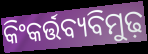
କିଂକର୍ତ୍ତବ୍ୟବିମୁଢ଼